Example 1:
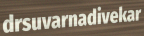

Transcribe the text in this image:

drsuvarnadivekar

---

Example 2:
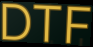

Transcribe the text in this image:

DTF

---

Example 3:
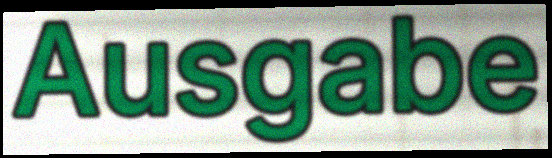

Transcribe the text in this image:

Ausgabe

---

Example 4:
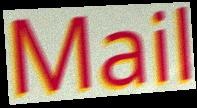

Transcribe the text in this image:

Mail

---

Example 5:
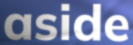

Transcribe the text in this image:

aside